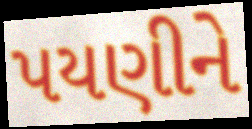
પયણીને